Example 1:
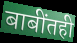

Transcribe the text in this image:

बाबींतही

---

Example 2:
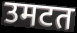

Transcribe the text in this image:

उमटत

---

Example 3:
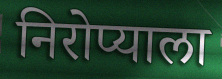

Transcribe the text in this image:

निरोप्याला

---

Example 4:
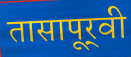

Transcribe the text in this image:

तासापूर्वी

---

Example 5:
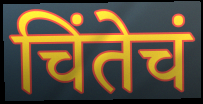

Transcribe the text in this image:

चिंतेचं